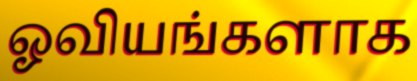
ஓவியங்களாக